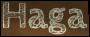
Haga